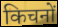
किचनों